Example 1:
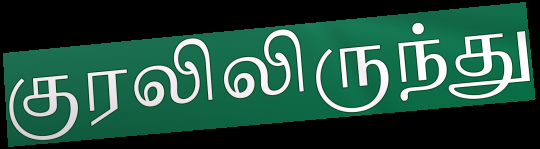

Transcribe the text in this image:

குரலிலிருந்து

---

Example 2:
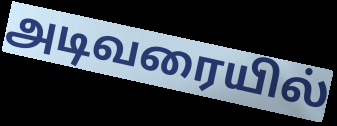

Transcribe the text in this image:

அடிவரையில்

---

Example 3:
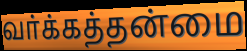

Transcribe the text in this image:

வர்க்கத்தன்மை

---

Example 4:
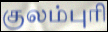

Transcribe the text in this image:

குலம்புரி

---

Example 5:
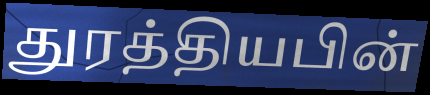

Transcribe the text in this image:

துரத்தியபின்